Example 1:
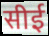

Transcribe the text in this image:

सीई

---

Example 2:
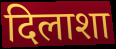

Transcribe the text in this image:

दिलाशा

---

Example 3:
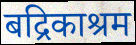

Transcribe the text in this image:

बद्रिकाश्रम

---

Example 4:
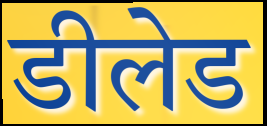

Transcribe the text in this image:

डीलेड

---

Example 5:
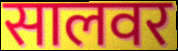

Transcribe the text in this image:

सालवर